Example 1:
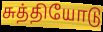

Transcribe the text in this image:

சுத்தியோடு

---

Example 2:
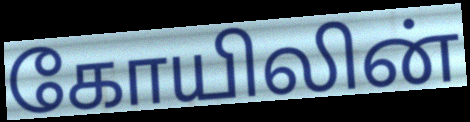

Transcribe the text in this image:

கோயிலின்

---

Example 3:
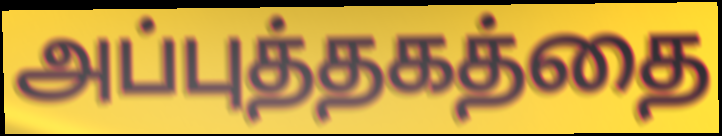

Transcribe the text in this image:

அப்புத்தகத்தை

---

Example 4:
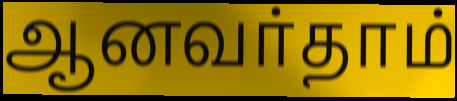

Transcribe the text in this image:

ஆனவர்தாம்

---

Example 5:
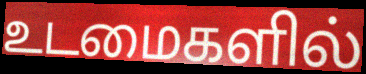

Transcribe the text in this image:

உடமைகளில்